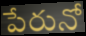
పేరునో